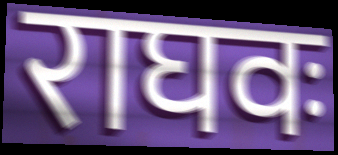
राघवः